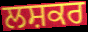
ਲਸ਼ਕਰ